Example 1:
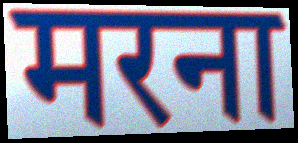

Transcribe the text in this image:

मरना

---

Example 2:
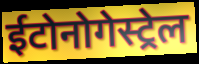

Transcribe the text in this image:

ईटोनोगेस्ट्रेल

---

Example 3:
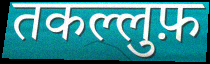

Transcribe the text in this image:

तकल्लुफ़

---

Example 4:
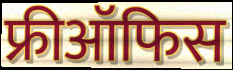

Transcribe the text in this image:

फ्रीऑफिस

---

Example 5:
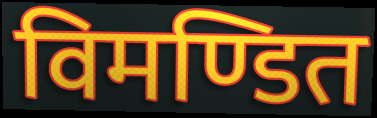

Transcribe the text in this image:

विमण्डित